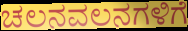
ಚಲನವಲನಗಳಿಗೆ